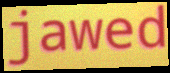
jawed